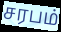
சரபம்